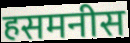
हसमनीस